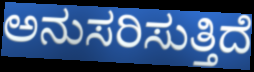
ಅನುಸರಿಸುತ್ತಿದೆ